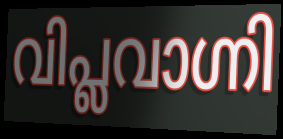
വിപ്ലവാഗ്നി